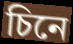
চিনে